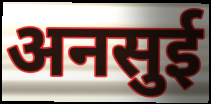
अनसुई